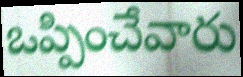
ఒప్పించేవారు